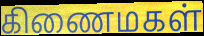
கிணைமகள்